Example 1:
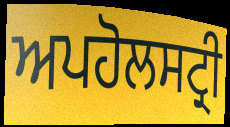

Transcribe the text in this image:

ਅਪਹੋਲਸਟ੍ਰੀ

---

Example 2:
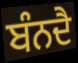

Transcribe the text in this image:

ਬੰਨਦੈ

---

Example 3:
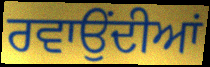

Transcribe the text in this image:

ਰਵਾਉਂਦੀਆਂ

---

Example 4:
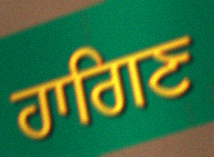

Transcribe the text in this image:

ਹਾਗਿਣ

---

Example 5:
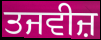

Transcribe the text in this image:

ਤਜਵੀਜ਼